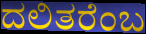
ದಲಿತರೆಂಬ